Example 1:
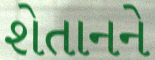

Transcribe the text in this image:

શેતાનને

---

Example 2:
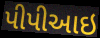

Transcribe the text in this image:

પીપીઆઇ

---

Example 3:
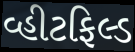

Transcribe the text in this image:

વ્હીટફિલ્ડ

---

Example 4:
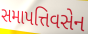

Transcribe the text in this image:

સમાપત્તિવસેન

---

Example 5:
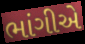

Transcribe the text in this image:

ભાંગીએ